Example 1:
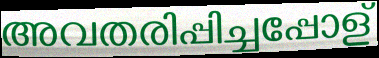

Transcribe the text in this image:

അവതരിപ്പിച്ചപ്പോള്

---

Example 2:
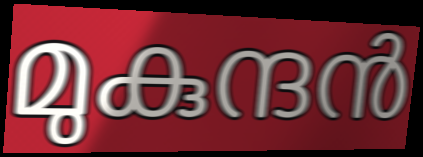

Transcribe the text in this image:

മുകുന്ദൻ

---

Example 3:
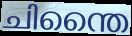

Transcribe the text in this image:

ചിന്തൈ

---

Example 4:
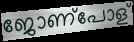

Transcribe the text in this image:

ജോണ്പോള്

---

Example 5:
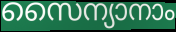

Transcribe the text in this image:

സൈന്യാനാം